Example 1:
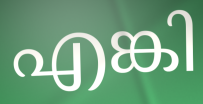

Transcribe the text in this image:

എങ്കി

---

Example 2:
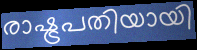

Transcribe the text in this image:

രാഷ്ട്രപതിയായി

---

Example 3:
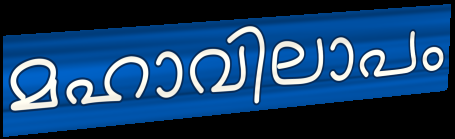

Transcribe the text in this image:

മഹാവിലാപം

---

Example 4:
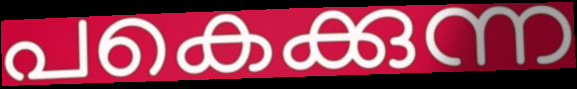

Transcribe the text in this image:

പകെക്കുന്ന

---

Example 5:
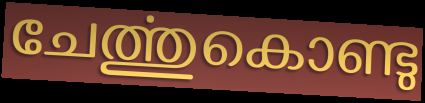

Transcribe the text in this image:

ചേൎത്തുകൊണ്ടു